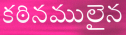
కఠినములైన